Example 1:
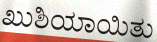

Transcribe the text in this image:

ಖುಶಿಯಾಯಿತು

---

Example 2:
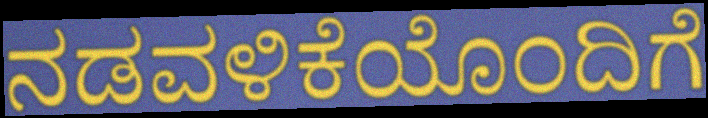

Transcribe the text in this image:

ನಡವಳಿಕೆಯೊಂದಿಗೆ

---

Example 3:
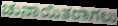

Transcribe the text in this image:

ಚುನಾಯಿತರಾಗಲು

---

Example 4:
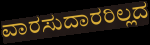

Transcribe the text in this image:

ವಾರಸುದಾರರಿಲ್ಲದ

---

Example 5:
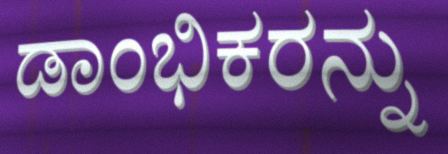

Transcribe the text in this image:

ಡಾಂಭಿಕರನ್ನು